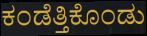
ಕಂಡೆತ್ತಿಕೊಂಡು